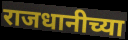
राजधानीच्या